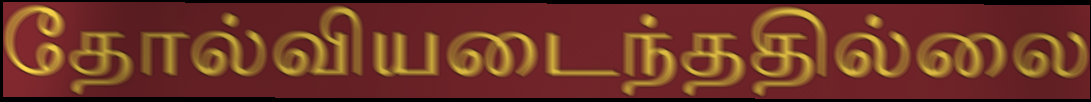
தோல்வியடைந்ததில்லை